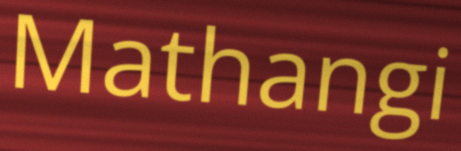
Mathangi